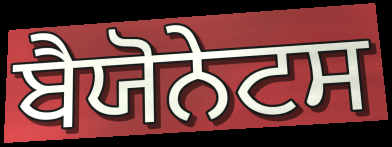
ਬੈਯੋਨੇਟਸ